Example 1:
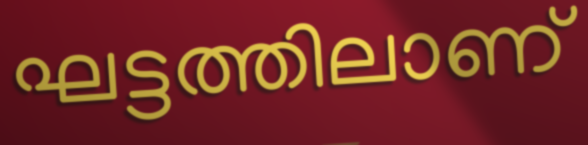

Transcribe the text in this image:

ഘട്ടത്തിലാണ്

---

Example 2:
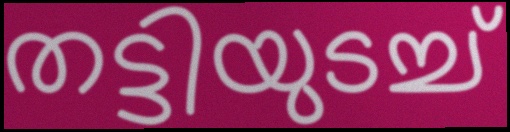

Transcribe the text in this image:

തട്ടിയുടച്ച്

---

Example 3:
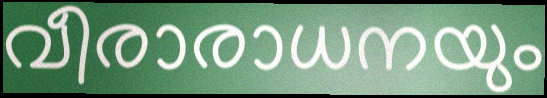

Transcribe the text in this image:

വീരാരാധനയും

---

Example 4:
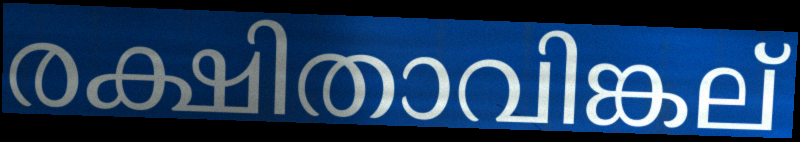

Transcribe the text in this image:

രക്ഷിതാവിങ്കല്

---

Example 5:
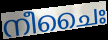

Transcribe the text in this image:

നീചൈഃ